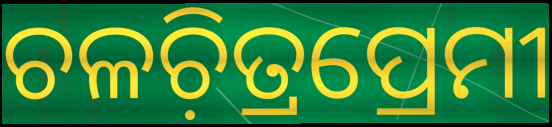
ଚଳଚ଼ିତ୍ରପ୍ରେମୀ